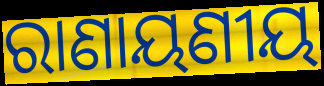
ରାଣାୟଣୀୟ